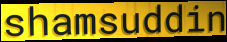
shamsuddin